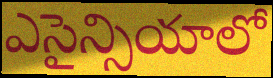
ఎసైన్సియాలో